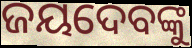
ଜୟଦେବଙ୍କୁ